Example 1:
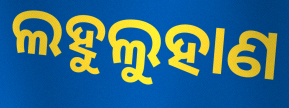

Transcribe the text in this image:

ଲହୁଲୁହାଣ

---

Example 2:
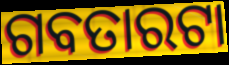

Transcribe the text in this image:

ଗବତାରଟା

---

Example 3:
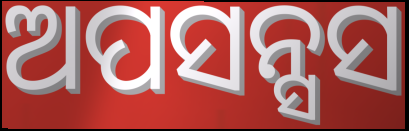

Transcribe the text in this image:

ଅପସନ୍ସସ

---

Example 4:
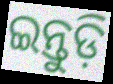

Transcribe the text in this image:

ଇନ୍ତୁଡ଼ି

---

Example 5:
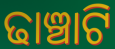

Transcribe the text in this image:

ଢାଞ୍ଚାଟି